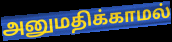
அனுமதிக்காமல்